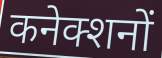
कनेक्शनों